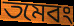
তমেবং